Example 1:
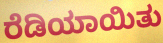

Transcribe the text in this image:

ರೆಡಿಯಾಯಿತು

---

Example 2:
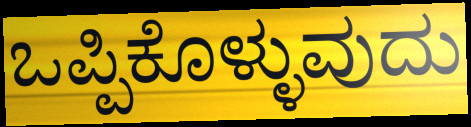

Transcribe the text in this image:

ಒಪ್ಪಿಕೊಳ್ಳುವುದು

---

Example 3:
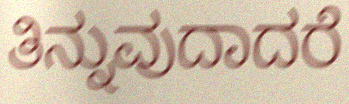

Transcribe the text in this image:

ತಿನ್ನುವುದಾದರೆ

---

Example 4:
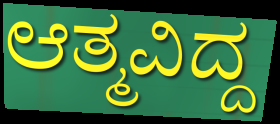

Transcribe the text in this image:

ಆತ್ಮವಿದ್ದ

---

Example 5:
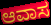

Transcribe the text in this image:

ಆವಾಸ